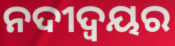
ନଦୀଦ୍ବୟର